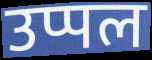
उप्पल